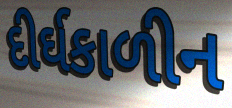
દીર્ઘકાળીન